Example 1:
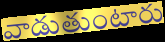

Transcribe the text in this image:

వాడుతుంటారు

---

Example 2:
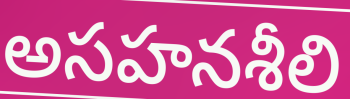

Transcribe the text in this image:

అసహనశీలి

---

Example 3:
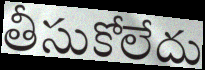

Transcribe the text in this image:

తీసుకోలేదు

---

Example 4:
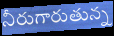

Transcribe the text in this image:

నీరుగారుతున్న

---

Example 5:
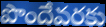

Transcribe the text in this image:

పొందేవరకు